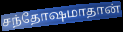
சந்தோஷமாதான்